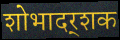
शोभादर्शक